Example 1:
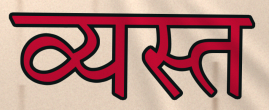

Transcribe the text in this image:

व्यस्त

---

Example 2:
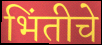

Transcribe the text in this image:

भिंतीचे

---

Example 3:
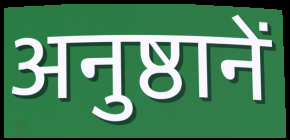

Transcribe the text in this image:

अनुष्ठानें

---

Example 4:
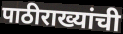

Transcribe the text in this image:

पाठीराख्यांची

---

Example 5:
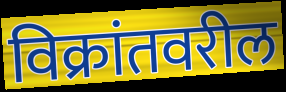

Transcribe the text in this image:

विक्रांतवरील